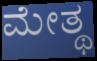
ಮೇತ್ಥ